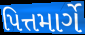
પિત્તમાર્ગે